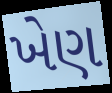
ખેણ